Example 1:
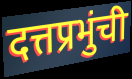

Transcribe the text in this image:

दत्तप्रभुंची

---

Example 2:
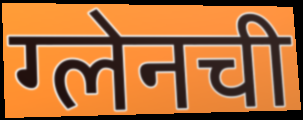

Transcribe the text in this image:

ग्लेनची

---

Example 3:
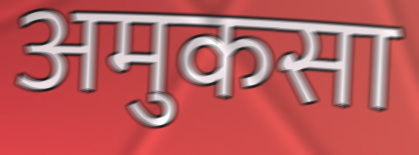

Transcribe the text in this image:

अमुकसा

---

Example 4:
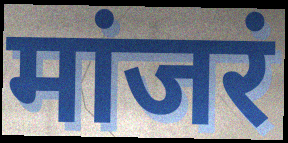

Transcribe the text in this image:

मांजरं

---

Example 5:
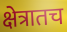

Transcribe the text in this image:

क्षेत्रातच